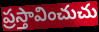
ప్రస్తావించుచు